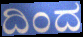
ದಿಂದ